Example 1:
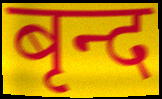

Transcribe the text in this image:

बृन्द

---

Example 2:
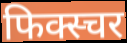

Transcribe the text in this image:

फिक्स्चर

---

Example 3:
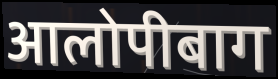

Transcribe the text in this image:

आलोपीबाग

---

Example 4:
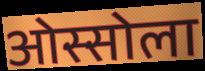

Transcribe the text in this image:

ओस्सोला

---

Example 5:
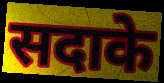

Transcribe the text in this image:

सदाके